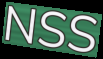
NSS